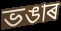
ভঙাৰ